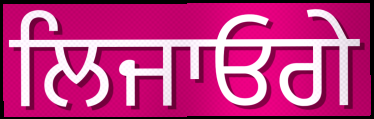
ਲਿਜਾਓਗੇ